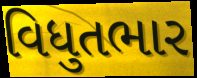
વિધુતભાર